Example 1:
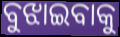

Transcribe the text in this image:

ବୁଝାଇବାକୁ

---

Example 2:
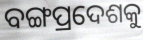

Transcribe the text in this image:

ବଙ୍ଗପ୍ରଦେଶକୁ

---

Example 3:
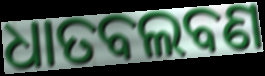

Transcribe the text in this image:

ଧାତବଲବଣ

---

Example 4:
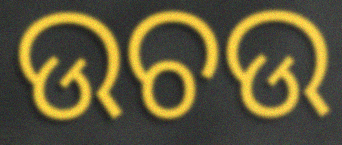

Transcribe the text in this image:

ଉଚଉ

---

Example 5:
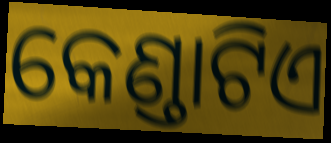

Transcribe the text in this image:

କେଣ୍ଡାଟିଏ